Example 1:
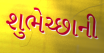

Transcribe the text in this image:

શુભેચ્છાની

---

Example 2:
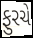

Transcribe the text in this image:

ફુરચે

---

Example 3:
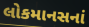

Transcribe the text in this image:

લોકમાનસનાં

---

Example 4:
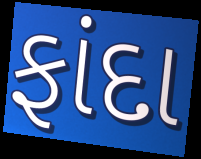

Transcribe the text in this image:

ફાંદા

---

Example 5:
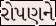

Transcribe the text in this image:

રોપણને